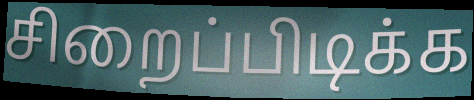
சிறைப்பிடிக்க